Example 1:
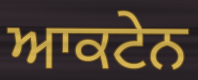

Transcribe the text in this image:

ਆਕਟੇਨ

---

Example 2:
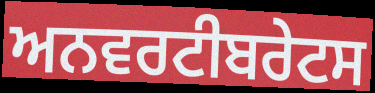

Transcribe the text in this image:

ਅਨਵਰਟੀਬਰੇਟਸ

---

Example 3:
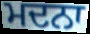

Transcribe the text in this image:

ਮਦਨਾ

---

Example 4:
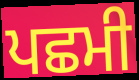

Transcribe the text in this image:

ਪਛਮੀ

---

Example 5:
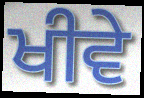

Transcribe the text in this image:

ਖੀਵੇ